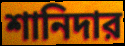
শানিদার